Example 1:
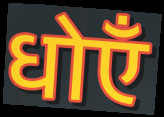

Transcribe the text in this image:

धोएँ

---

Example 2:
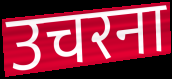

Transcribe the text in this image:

उचरना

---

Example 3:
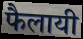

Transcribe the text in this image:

फैलायी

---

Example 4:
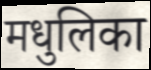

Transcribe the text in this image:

मधुलिका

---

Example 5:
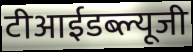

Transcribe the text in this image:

टीआईडब्ल्यूजी